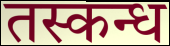
तस्कन्ध